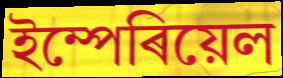
ইম্পেৰিয়েল